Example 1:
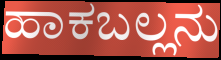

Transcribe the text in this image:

ಹಾಕಬಲ್ಲನು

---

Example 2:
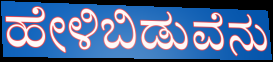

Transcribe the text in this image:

ಹೇಳಿಬಿಡುವೆನು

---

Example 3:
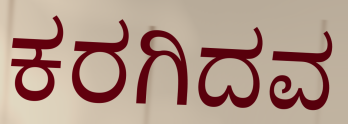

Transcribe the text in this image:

ಕರಗಿದವ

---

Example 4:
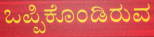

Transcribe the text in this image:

ಒಪ್ಪಿಕೊಂಡಿರುವ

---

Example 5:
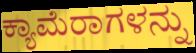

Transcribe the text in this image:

ಕ್ಯಾಮೆರಾಗಳನ್ನು